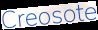
Creosote